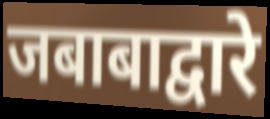
जबाबाद्वारे